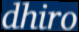
dhiro